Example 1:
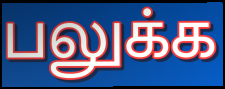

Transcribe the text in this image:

பலுக்க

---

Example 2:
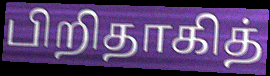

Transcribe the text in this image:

பிறிதாகித்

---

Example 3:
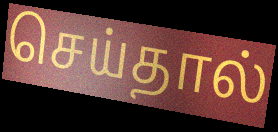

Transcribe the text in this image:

செய்தால்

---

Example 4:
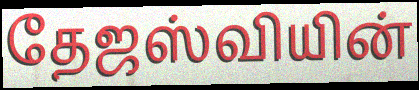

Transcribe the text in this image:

தேஜஸ்வியின்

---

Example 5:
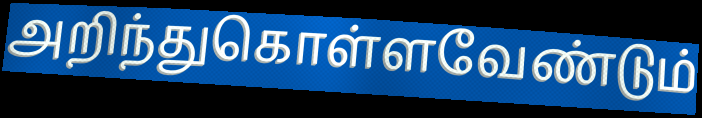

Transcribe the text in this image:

அறிந்துகொள்ளவேண்டும்